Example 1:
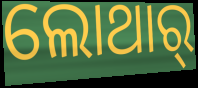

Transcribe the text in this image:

ଲୋଥାର୍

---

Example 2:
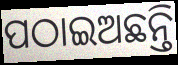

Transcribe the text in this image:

ପଠାଇଅଛନ୍ତି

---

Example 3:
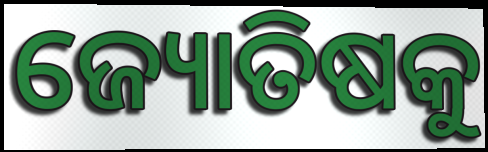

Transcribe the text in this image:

ଜ୍ୟୋତିଷକୁ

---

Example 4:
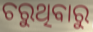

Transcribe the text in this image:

ଚରୁଥିବାରୁ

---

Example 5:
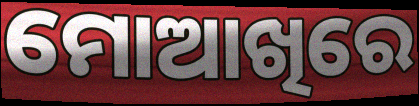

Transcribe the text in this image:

ମୋଆଖିରେ